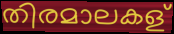
തിരമാലകള്